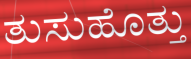
ತುಸುಹೊತ್ತು